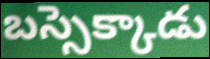
బస్సెక్కాడు